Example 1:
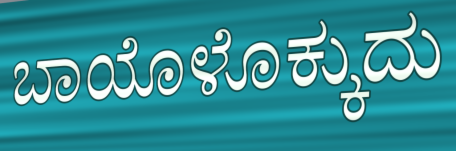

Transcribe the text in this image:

ಬಾಯೊಳೊಕ್ಕುದು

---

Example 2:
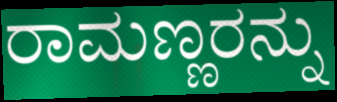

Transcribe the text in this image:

ರಾಮಣ್ಣರನ್ನು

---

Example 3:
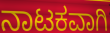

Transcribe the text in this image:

ನಾಟಕವಾಗಿ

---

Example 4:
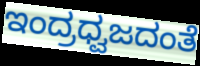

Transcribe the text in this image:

ಇಂದ್ರಧ್ವಜದಂತೆ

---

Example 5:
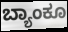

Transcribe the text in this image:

ಬ್ಯಾಂಕೂ